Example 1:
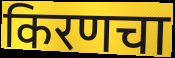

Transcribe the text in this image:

किरणचा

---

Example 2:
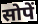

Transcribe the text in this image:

सोपें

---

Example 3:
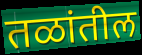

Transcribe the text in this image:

तळांतील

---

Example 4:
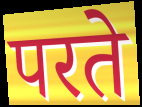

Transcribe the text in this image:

परते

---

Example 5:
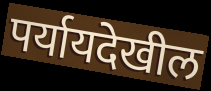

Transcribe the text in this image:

पर्यायदेखील